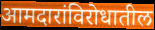
आमदारांविरोधातील